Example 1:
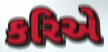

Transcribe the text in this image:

કરિએ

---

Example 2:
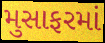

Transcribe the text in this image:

મુસાફરમાં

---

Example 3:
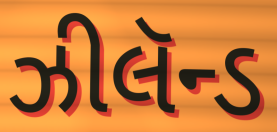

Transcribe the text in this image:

ઝીલૅન્ડ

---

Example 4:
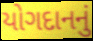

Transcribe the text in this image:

યોગદાનનું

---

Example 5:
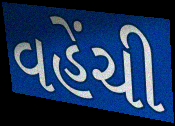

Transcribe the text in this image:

વહેંચી